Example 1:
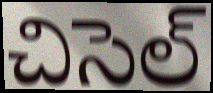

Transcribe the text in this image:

చిసెల్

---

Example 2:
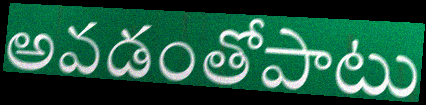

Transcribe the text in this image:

అవడంతోపాటు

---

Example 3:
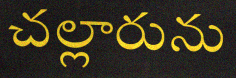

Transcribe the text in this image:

చల్లారును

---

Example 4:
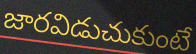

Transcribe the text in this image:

జారవిడుచుకుంటే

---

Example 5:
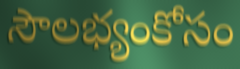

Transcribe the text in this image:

సౌలభ్యంకోసం